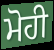
ਮੋਹੀ